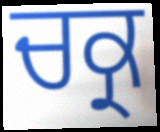
ਚਕ੍ਰ